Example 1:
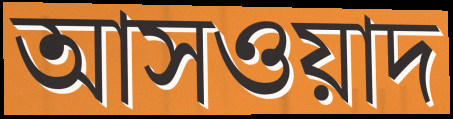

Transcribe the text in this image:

আসওয়াদ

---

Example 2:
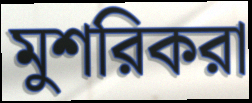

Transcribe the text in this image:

মুশরিকরা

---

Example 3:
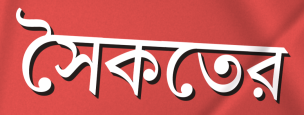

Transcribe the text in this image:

সৈকতের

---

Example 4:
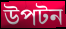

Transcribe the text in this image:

উপটন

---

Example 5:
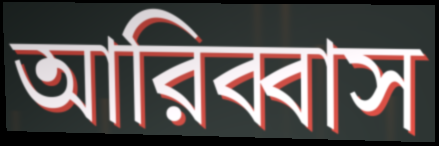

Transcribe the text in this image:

আরিব্বাস